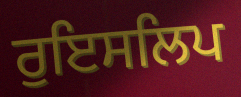
ਰੁਇਸਲਿਪ